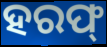
ହରଫ୍